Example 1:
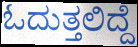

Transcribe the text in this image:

ಓದುತ್ತಲಿದ್ದೆ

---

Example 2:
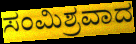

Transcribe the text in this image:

ಸಂಮಿಶ್ರವಾದ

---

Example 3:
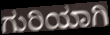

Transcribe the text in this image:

ಗುರಿಯಾಗಿ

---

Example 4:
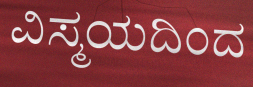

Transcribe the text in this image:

ವಿಸ್ಮಯದಿಂದ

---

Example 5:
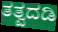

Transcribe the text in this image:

ತತ್ವದಡಿ